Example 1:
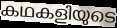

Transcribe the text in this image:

കഥകളിയുടെ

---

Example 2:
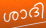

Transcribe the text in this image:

ശാദി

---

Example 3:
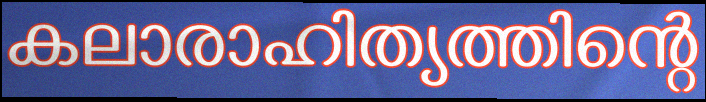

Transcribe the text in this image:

കലാരാഹിത്യത്തിന്റെ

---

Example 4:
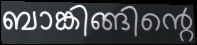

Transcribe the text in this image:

ബാങ്കിങ്ങിന്റെ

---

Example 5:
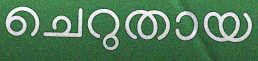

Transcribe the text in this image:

ചെറുതായ